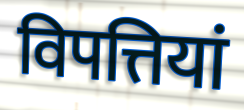
विपत्तियां